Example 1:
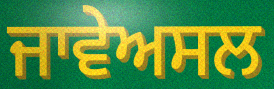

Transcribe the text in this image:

ਜਾਵੇਅਸਲ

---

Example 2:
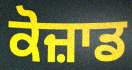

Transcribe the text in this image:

ਕੋਜ਼ਾਡ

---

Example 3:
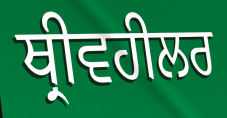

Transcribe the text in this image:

ਥ੍ਰੀਵਹੀਲਰ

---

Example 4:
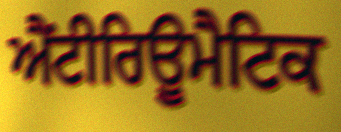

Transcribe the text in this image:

ਐਂਟੀਰਿਊਮੈਟਿਕ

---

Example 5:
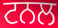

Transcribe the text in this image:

ਟਨਲ